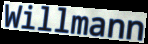
Willmann